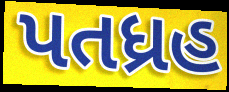
પતધ્રહ